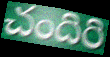
చందిరి